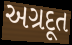
અગ્રદૂત